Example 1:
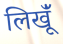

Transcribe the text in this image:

लिखूंँ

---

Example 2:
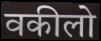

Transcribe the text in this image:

वकीलो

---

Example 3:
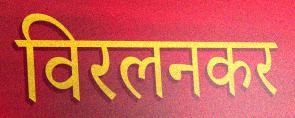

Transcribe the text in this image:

विरलनकर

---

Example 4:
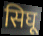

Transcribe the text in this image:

सिघू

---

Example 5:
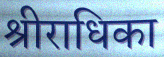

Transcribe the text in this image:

श्रीराधिका